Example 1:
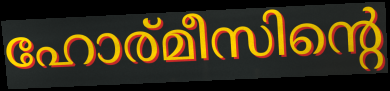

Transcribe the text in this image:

ഹോര്മീസിന്റെ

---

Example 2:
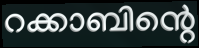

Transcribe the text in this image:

റക്കാബിന്റെ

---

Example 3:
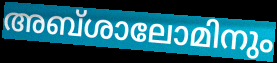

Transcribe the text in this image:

അബ്ശാലോമിനും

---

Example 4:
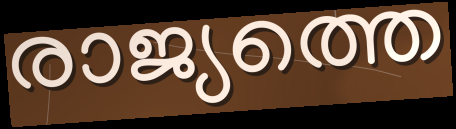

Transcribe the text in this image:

രാജ്യത്തെ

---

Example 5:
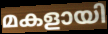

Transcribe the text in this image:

മകളായി